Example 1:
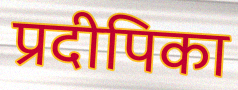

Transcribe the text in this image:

प्रदीपिका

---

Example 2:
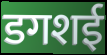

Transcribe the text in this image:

डगशई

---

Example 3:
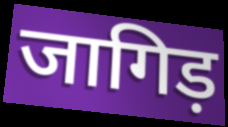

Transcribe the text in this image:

जागिड़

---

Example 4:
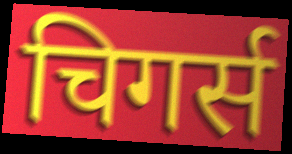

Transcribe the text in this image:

चिगर्स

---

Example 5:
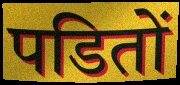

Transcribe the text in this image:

पडितों